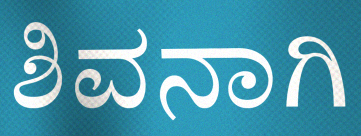
ಶಿವನಾಗಿ